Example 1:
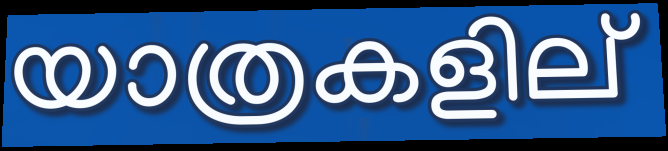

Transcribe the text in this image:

യാത്രകളില്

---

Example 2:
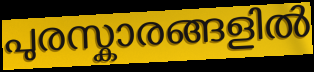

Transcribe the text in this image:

പുരസ്കാരങ്ങളിൽ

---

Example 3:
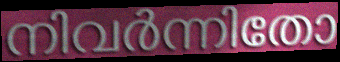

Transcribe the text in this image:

നിവർന്നിതോ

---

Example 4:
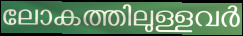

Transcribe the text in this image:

ലോകത്തിലുള്ളവർ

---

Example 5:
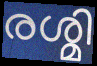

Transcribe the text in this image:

രശ്മി